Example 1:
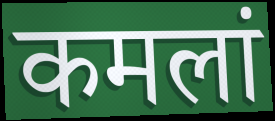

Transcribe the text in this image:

कमलां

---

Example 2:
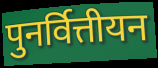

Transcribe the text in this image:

पुनर्वित्तीयन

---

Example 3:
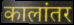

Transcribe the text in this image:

कालांतर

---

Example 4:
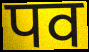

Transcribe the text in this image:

पव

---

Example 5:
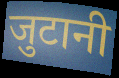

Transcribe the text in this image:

जुटानी